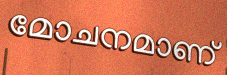
മോചനമാണ്